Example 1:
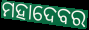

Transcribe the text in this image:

ମହାଦେବର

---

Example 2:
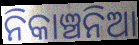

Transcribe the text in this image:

ନିକାଞ୍ଚନିଆ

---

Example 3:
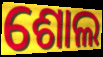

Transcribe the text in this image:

ଶୋଲ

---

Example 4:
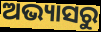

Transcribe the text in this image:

ଅଭ୍ୟାସରୁ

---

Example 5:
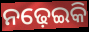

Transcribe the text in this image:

ନଢ଼େଇକି